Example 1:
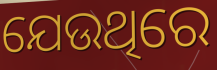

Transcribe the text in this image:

ଯେଉଥିରେ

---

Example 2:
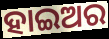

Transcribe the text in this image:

ହାଇଅର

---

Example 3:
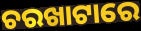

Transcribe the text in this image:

ଚରଖାଟାରେ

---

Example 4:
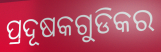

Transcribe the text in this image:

ପ୍ରଦୂଷକଗୁଡିକର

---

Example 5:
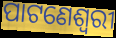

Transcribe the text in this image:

ପାଟଣେଶ୍ୱରୀ